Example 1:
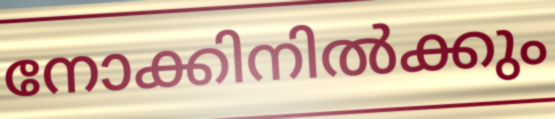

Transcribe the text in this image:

നോക്കിനിൽക്കും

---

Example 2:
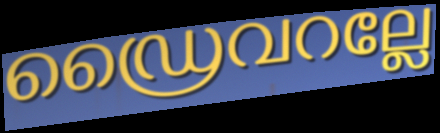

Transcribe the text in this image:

ഡ്രൈവറല്ലേ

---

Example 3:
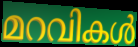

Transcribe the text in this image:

മറവികൾ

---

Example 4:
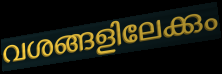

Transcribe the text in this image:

വശങ്ങളിലേക്കും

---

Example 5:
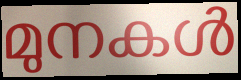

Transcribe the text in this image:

മുനകൾ